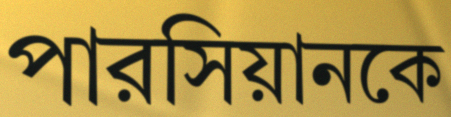
পারসিয়ানকে